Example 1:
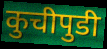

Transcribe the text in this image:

कुचीपुडी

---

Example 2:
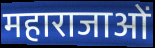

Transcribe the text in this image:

महाराजाओं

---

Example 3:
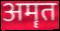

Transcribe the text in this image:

अमॄत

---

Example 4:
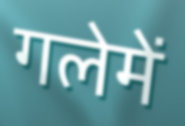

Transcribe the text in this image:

गलेमें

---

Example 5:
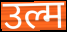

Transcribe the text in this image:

उल्म